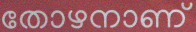
തോഴനാണ്